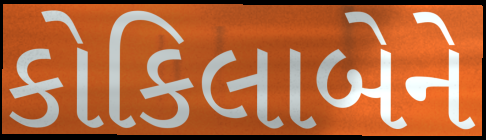
કોકિલાબેને